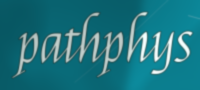
pathphys